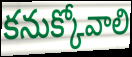
కనుక్కోవాలి